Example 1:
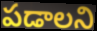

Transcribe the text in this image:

పడాలని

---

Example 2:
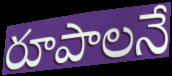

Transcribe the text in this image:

రూపాలనే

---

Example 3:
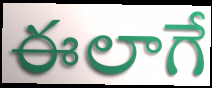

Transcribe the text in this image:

ఈలాగే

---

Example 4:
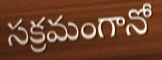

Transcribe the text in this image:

సక్రమంగానో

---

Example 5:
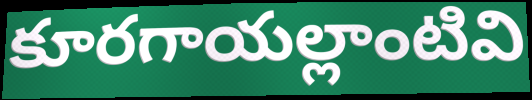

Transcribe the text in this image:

కూరగాయల్లాంటివి